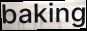
baking